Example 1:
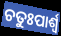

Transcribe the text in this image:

ଚତୁଃପାର୍ଶ୍ବ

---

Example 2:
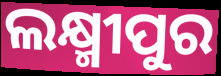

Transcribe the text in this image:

ଲକ୍ଷ୍ମୀପୁର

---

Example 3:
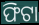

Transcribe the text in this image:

ଫିଟା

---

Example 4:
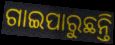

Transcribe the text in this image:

ଗାଇପାରୁଛନ୍ତି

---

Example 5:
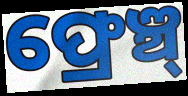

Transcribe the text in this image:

ଫ୍ରେଞ୍ଚ୍